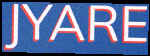
JYARE